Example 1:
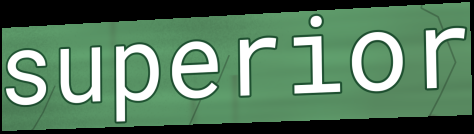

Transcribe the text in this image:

superior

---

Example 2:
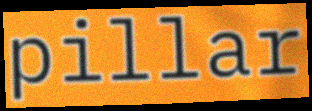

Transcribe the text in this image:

pillar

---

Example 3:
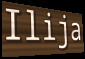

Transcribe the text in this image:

Ilija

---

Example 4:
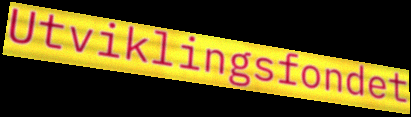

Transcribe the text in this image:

Utviklingsfondet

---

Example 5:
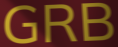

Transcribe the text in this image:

GRB